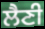
ਲੈਣੀ